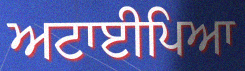
ਅਟਾਈਪਿਆ